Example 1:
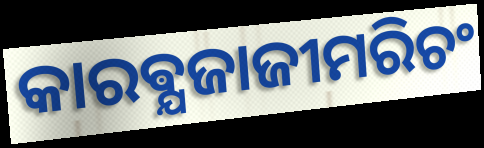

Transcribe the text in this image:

କାରଵ୍ଯଜାଜୀମରିଚଂ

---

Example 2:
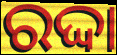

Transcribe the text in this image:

ରଦ୍ଦା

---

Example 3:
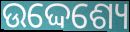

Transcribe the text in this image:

ଉଦ୍ଦେଶ୍ୟେ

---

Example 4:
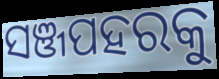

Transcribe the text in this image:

ସଞ୍ଜପହରକୁ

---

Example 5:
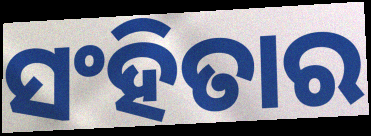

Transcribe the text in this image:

ସଂହିତାର